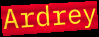
Ardrey